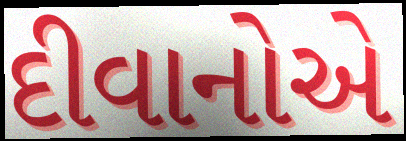
દીવાનોએ